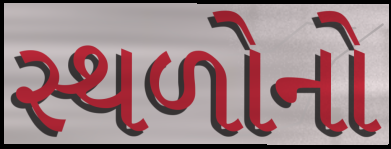
સ્થળોનો